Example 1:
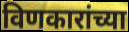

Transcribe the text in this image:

विणकारांच्या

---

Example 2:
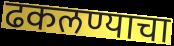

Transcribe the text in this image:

ढकलण्याचा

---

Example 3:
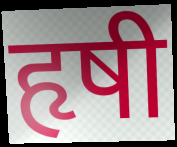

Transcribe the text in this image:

हृषी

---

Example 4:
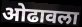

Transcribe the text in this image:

ओढावला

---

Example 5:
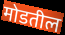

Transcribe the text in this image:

मोडतील